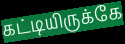
கட்டியிருக்கே